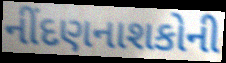
નીંદણનાશકોની